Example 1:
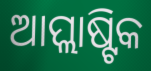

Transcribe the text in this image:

ଆପ୍ଲାଷ୍ଟିକ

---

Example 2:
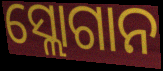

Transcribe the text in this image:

ସ୍ଲୋଗାନ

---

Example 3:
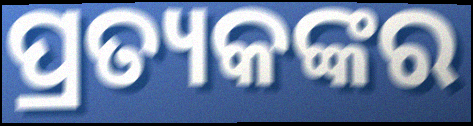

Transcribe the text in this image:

ପ୍ରତ୍ୟକଙ୍କର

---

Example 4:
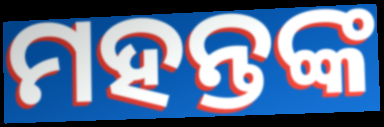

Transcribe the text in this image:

ମହନ୍ତଙ୍କ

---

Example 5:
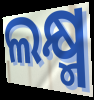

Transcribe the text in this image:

ଲକ୍ଷ୍ମ